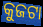
କୁଜଟା